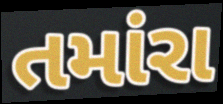
તમાંરા